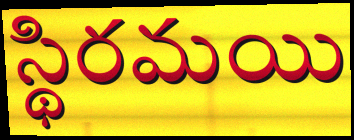
స్థిరమయి